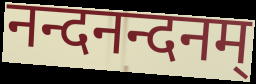
नन्दनन्दनम्